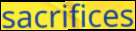
sacrifices